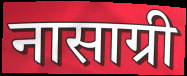
नासाग्री